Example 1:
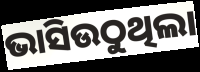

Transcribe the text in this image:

ଭାସିଉଠୁଥିଲା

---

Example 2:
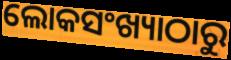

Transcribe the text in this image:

ଲୋକସଂଖ୍ୟାଠାରୁ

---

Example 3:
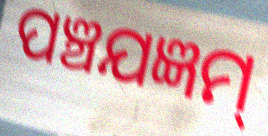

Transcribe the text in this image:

ପଞ୍ଚଯଜ୍ଞମ୍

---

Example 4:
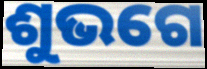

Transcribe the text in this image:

ଶୁଭଗେ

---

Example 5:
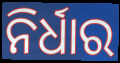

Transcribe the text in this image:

ନିର୍ଧାର